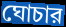
ঘোচার